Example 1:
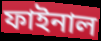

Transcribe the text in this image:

ফাইনাল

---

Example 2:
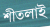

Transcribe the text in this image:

শীতলাই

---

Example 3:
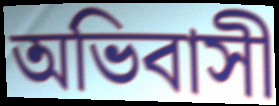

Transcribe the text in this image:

অভিবাসী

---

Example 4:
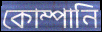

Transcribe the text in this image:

কোম্পানি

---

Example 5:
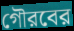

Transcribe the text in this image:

গৌরবের